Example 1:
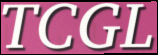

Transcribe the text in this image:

TCGL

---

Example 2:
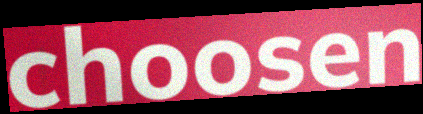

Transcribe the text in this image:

choosen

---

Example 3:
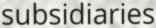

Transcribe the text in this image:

subsidiaries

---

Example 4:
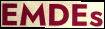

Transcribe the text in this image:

EMDEs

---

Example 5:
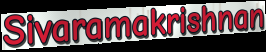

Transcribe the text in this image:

Sivaramakrishnan